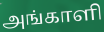
அங்காளி